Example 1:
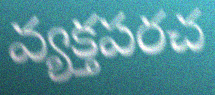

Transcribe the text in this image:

వ్యక్తపరచ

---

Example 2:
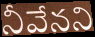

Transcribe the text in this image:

నీవేనని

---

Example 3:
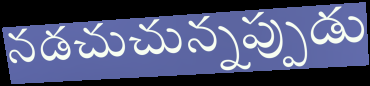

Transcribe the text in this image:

నడచుచున్నప్పుడు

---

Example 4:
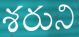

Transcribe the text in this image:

శరుని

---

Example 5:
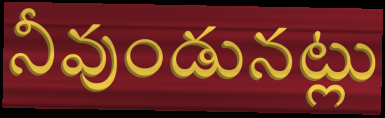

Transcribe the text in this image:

నీవుండునట్లు